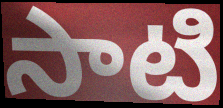
సాటి